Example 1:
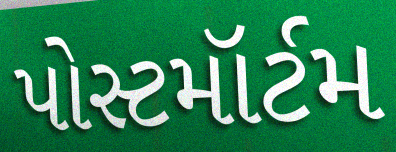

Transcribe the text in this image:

પોસ્ટમૉર્ટમ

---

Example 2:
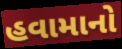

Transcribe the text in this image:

હવામાનો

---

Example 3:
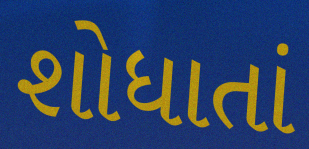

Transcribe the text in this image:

શોધાતાં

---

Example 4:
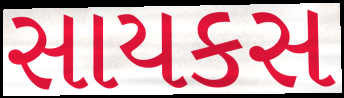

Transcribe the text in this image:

સાયકસ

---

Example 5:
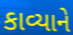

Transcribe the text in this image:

કાવ્યાને